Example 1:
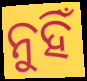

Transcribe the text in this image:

ନୁହିଁ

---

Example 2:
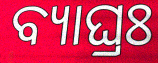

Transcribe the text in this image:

ବ୍ୟାଘ୍ରଃ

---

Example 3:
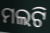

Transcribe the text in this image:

ମଲଟି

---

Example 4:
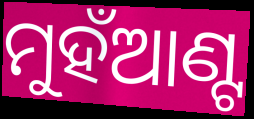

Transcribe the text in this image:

ମୁହଁଆଣ୍ଟ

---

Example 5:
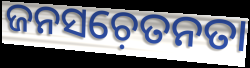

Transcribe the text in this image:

ଜନସଚ଼େତନତା